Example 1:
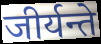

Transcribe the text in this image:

जीर्यन्ते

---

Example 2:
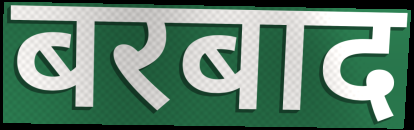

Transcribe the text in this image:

बरबाद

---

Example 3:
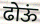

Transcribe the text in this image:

ढोऊं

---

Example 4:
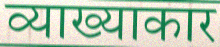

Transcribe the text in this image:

व्याख्याकार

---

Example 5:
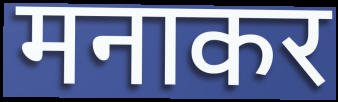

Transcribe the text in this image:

मनाकर